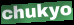
chukyo